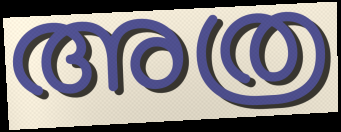
അത്ര